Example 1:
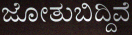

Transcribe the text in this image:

ಜೋತುಬಿದ್ದಿವೆ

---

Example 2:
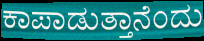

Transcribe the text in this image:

ಕಾಪಾಡುತ್ತಾನೆಂದು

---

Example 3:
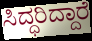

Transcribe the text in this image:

ಸಿದ್ಧರಿದ್ದಾರೆ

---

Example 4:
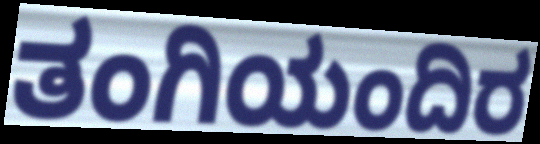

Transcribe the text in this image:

ತಂಗಿಯಂದಿರ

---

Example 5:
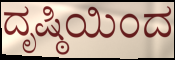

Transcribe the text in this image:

ದೃಷ್ಠಿಯಿಂದ